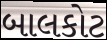
બાલકોટ